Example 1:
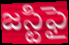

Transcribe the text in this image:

జస్టిఫై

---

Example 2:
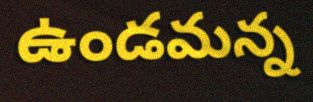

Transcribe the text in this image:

ఉండమన్న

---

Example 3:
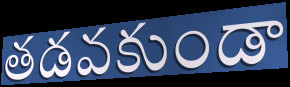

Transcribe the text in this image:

తడవకుండా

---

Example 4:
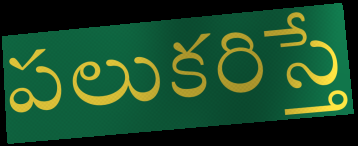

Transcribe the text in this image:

పలుకరిస్తే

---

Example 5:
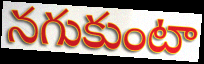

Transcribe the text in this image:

నగుకుంటా